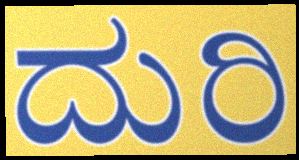
ದುರಿ